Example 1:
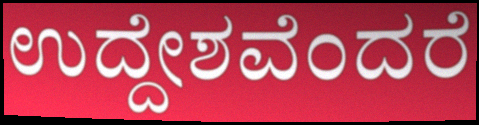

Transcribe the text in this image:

ಉದ್ದೇಶವೆಂದರೆ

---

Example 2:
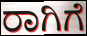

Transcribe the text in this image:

ರಾಗಿಗೆ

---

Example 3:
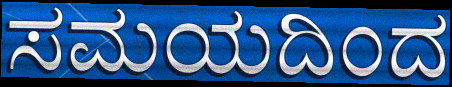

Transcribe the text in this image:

ಸಮಯದಿಂದ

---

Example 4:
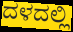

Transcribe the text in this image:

ದಳದಲ್ಲಿ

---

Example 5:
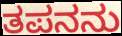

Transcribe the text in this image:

ತಪನನು